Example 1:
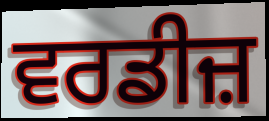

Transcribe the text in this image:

ਵਰਡੀਜ਼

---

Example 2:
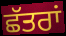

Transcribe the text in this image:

ਛੱਤਰਾਂ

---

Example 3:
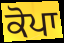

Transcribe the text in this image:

ਕੋਪਾ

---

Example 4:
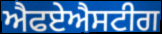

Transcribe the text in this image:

ਐਫਏਐਸਟੀਗ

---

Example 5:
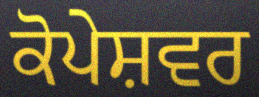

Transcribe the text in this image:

ਕੋਪੇਸ਼ਵਰ